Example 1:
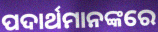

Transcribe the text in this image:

ପଦାର୍ଥମାନଙ୍କରେ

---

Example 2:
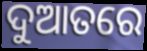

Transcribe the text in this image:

ଦୁଆତରେ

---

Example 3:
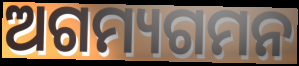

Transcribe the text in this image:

ଅଗମ୍ୟଗମନ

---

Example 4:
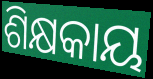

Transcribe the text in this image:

ଶିକ୍ଷକାୟ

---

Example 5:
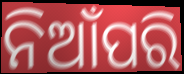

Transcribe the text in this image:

ନିଆଁପରି